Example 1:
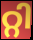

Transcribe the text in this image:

റ്റി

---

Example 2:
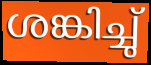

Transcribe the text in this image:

ശങ്കിച്ചു്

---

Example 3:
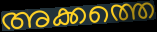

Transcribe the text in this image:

അക്കത്തെ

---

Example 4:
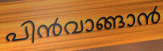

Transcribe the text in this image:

പിൻവാങ്ങാൻ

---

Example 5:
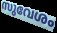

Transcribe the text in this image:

സുവേശം